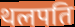
थलपति